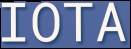
IOTA